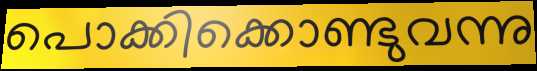
പൊക്കിക്കൊണ്ടുവന്നു